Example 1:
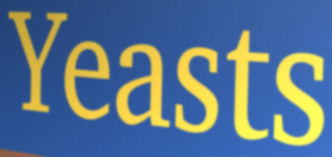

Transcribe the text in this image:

Yeasts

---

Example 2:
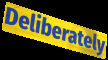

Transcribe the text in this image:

Deliberately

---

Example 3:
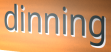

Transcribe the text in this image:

dinning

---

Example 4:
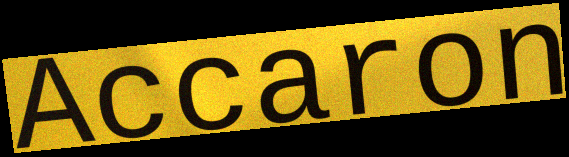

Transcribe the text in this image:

Accaron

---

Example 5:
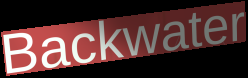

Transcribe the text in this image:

Backwater